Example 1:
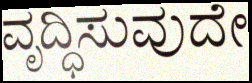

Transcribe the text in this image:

ವೃದ್ಧಿಸುವುದೇ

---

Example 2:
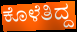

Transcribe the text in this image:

ಕೊಳೆತಿದ್ದ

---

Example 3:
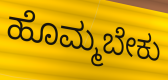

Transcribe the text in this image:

ಹೊಮ್ಮಬೇಕು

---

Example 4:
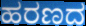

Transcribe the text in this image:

ಹರಣದ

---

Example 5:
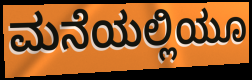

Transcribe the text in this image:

ಮನೆಯಲ್ಲಿಯೂ